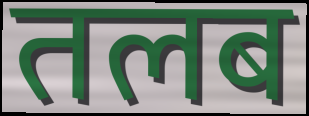
तलब